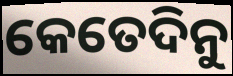
କେତେଦିନୁ